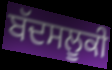
ਬੱਦਸਲੂਕੀ